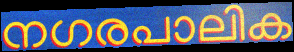
നഗരപാലിക